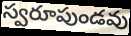
స్వరూపుండవు